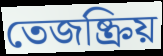
তেজষ্ক্রিয়